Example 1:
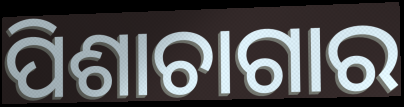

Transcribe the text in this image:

ପିଶାଚାଗାର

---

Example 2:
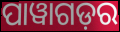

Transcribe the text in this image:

ପାୱାଗଡ଼ର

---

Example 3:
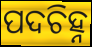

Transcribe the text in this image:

ପଦଚିହ୍ନ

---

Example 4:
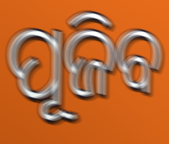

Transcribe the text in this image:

ପୂଜିବ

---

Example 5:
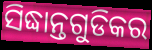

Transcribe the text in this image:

ସିଦ୍ଧାନ୍ତଗୁଡିକର